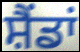
ਸ਼ੈਂਡਾਂ